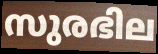
സുരഭില